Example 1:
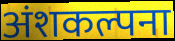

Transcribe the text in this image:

अंशकल्पना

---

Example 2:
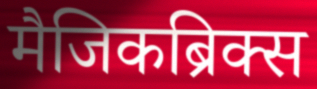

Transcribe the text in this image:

मैजिकब्रिक्स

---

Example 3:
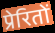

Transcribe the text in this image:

प्रेरितों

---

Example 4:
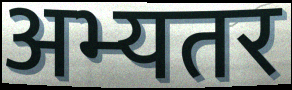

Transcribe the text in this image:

अभ्यतर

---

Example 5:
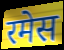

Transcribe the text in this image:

रमेस